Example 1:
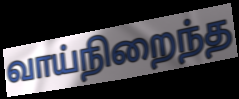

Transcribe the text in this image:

வாய்நிறைந்த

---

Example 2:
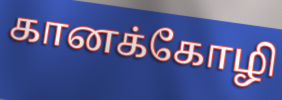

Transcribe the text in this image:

கானக்கோழி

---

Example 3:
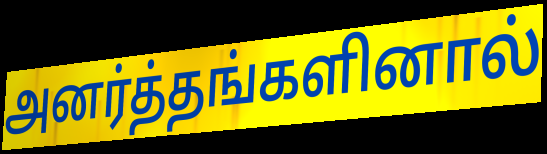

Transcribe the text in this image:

அனர்த்தங்களினால்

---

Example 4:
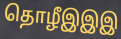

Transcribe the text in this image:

தொழீஇஇஇ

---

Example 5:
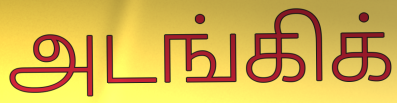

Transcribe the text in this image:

அடங்கிக்